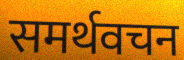
समर्थवचन